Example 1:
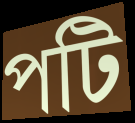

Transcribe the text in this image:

পটি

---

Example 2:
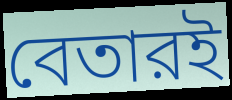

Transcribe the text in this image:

বেতারই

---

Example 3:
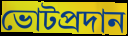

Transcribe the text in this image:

ভোটপ্রদান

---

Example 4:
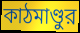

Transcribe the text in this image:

কাঠমাণ্ডুর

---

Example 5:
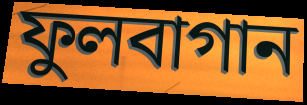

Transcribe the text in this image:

ফুলবাগান